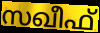
സഖീഫ്